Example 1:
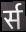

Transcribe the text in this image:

र्स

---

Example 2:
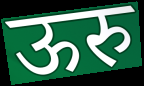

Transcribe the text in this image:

ऊरु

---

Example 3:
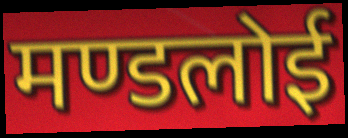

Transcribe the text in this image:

मण्डलोई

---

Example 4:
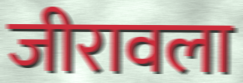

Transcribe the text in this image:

जीरावला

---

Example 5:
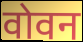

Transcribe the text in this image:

वोवन